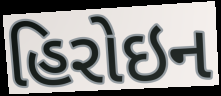
હિરોઇન